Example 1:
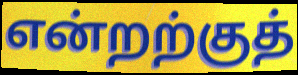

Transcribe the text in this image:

என்றற்குத்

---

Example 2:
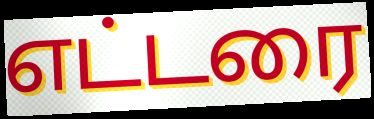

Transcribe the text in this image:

எட்டரை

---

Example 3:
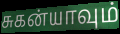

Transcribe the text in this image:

சுகன்யாவும்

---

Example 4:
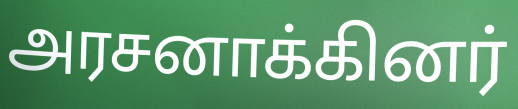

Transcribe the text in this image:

அரசனாக்கினர்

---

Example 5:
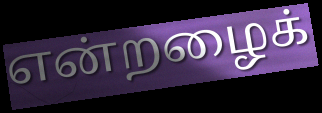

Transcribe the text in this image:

என்றழைக்